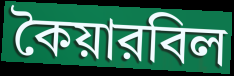
কৈয়ারবিল